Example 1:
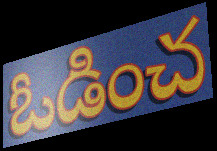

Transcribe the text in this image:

ఓడించ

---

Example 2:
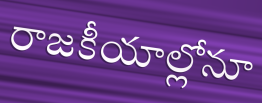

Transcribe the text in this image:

రాజకీయాల్లోనూ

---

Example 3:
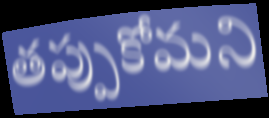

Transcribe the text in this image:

తప్పుకోమని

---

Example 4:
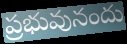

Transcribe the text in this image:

ప్రభువునందు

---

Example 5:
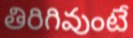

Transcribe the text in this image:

తిరిగివుంటే